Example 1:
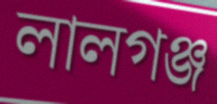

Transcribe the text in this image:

লালগঞ্জ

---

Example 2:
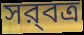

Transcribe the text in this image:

সর্‍বত্র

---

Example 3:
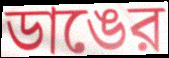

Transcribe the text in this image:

ডাঙের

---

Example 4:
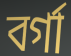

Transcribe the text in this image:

বর্গা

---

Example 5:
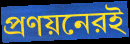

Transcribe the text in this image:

প্রণয়নেরই